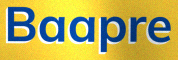
Baapre